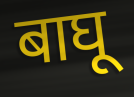
बाघू